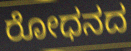
ರೋಧನದ